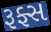
રૂફ્સ